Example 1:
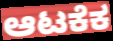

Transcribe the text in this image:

ಆಟಕೆಕ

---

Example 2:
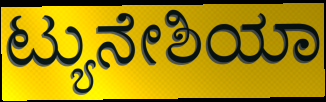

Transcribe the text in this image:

ಟ್ಯುನೇಶಿಯಾ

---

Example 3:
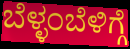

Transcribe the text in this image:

ಬೆಳ್ಳಂಬೆಳಿಗ್ಗೆ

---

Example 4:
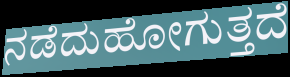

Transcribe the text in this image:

ನಡೆದುಹೋಗುತ್ತದೆ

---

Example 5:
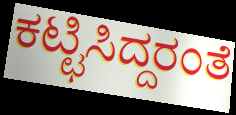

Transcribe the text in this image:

ಕಟ್ಟಿಸಿದ್ದರಂತೆ